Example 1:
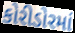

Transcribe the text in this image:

કોરીડોરમાં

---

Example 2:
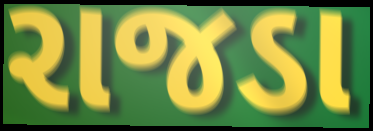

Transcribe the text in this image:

રાજડા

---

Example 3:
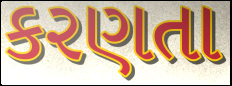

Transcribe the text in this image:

કરણતા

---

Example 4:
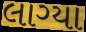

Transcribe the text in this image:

લાગ્યા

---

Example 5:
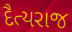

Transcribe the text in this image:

દૈત્યરાજ